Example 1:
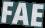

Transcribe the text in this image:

FAE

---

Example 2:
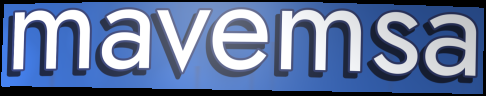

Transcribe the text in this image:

mavemsa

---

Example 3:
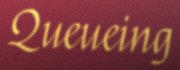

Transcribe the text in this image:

Queueing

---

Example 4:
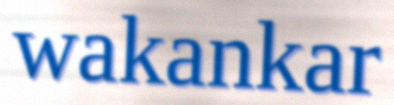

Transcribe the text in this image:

wakankar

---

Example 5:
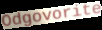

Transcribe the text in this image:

Odgovorite